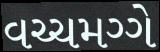
વચ્ચમગ્ગે